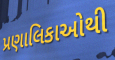
પ્રણાલિકાઓથી